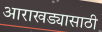
आराखड्यासाठी